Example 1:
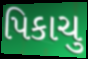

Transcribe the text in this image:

પિકાચુ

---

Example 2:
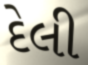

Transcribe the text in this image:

દેલી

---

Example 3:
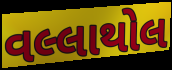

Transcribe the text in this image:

વલ્લાથોલ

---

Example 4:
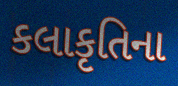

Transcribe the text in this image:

કલાકૃતિના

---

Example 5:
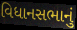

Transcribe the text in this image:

વિધાનસભાનું